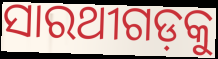
ସାରଥୀଗଡ଼କୁ